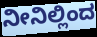
ನೀನಿಲ್ಲಿಂದ